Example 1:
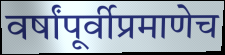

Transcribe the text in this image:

वर्षांपूर्वीप्रमाणेच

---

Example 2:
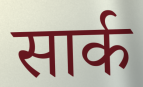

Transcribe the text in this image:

सार्क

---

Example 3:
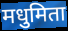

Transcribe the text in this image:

मधुमिता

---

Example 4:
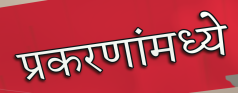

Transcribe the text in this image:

प्रकरणांमध्ये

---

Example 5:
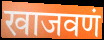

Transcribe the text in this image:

खाजवणं